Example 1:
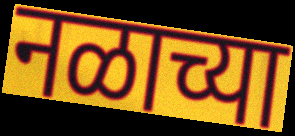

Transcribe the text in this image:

नळाच्या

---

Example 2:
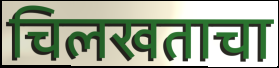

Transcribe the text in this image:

चिलखताचा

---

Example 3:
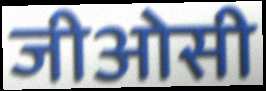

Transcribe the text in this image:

जीओसी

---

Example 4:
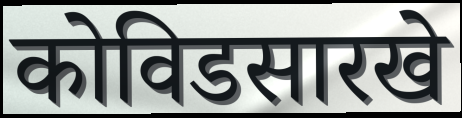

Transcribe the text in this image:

कोविडसारखे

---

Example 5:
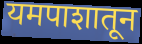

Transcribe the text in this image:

यमपाशातून